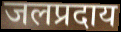
जलप्रदाय